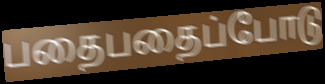
பதைபதைப்போடு